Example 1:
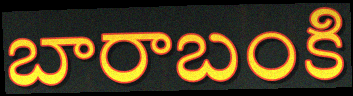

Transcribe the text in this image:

బారాబంకి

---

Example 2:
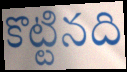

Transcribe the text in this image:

కొట్టినది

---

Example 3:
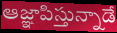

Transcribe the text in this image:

ఆజ్ఞాపిస్తున్నాడే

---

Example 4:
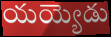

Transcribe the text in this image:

యయ్యెడు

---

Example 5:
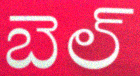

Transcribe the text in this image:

బెల్